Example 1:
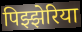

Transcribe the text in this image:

पिझ्झेरिया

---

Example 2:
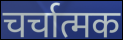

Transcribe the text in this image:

चर्चात्मक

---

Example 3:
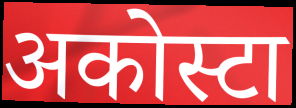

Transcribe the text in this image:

अकोस्टा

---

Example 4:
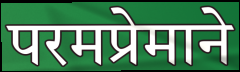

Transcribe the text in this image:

परमप्रेमाने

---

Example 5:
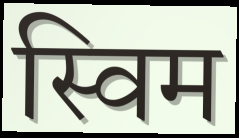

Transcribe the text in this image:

स्विम